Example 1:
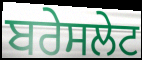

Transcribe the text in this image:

ਬਰੇਸਲੇਟ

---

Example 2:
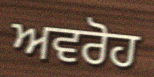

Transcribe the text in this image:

ਅਵਰੋਹ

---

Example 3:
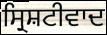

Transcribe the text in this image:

ਸ੍ਰਿਸ਼ਟੀਵਾਦ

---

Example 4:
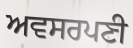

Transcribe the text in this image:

ਅਵਸਰਪਣੀ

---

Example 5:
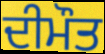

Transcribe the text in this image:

ਦੀਮੌਤ